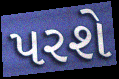
પરશે